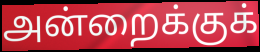
அன்றைக்குக்